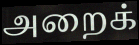
அறைக்